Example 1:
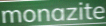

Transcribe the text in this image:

monazite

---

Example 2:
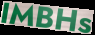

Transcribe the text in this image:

IMBHs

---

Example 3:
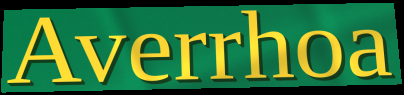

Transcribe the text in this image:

Averrhoa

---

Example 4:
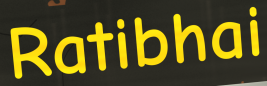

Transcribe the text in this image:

Ratibhai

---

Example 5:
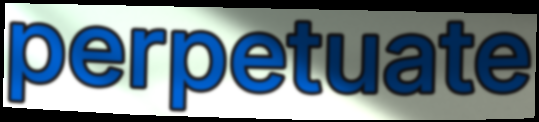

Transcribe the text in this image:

perpetuate